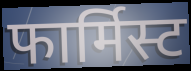
फार्मिस्ट